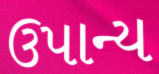
ઉપાન્ય